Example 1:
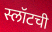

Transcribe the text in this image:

स्लॉटची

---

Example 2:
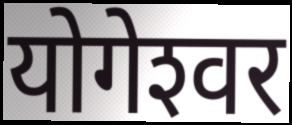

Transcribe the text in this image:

योगेश्‍वर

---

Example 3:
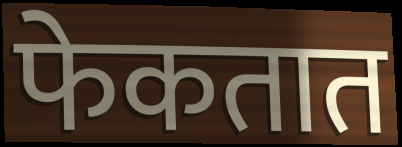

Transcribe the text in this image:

फेकतात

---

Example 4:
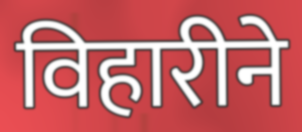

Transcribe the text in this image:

विहारीने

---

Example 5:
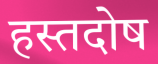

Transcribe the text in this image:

हस्तदोष